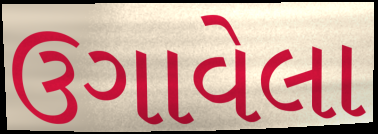
ઉગાવેલા